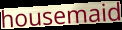
housemaid